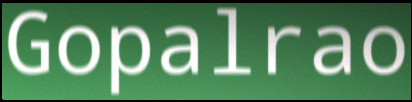
Gopalrao